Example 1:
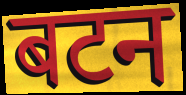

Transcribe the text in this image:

बटन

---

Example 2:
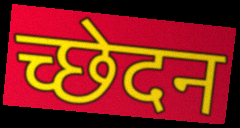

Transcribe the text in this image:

च्छेदन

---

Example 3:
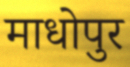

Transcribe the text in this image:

माधोपुर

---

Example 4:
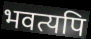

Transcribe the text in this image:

भवत्यपि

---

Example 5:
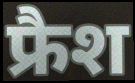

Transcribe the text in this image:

फ्रैश